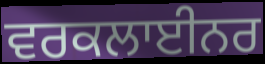
ਵਰਕਲਾਈਨਰ